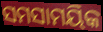
ସମସାମୟିକ